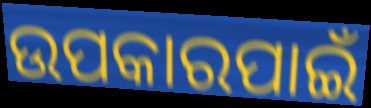
ଉପକାରପାଇଁ